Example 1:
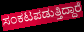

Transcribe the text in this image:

ಸಂಕಟಪಡುತ್ತಿದ್ದಾರೆ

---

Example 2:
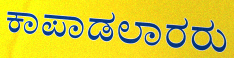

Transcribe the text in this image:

ಕಾಪಾಡಲಾರರು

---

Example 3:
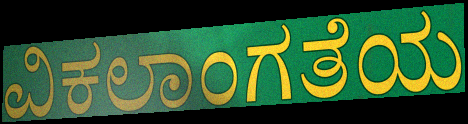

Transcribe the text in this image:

ವಿಕಲಾಂಗತೆಯ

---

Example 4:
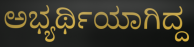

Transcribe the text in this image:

ಅಭ್ಯರ್ಥಿಯಾಗಿದ್ದ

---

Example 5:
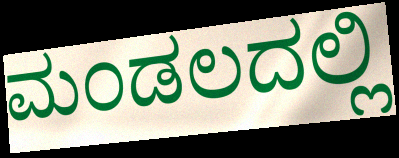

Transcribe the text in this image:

ಮಂಡಲದಲ್ಲಿ